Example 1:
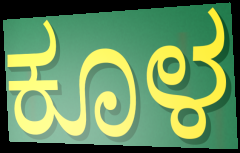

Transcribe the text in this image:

ಕೂಳ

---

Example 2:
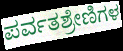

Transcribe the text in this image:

ಪರ್ವತಶ್ರೇಣಿಗಳ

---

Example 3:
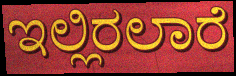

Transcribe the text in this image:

ಇಲ್ಲಿರಲಾರೆ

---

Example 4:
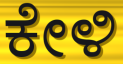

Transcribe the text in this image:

ಕೇಳಿ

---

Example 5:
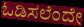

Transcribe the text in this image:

ಓಡಿಸಲೆಂದೇ